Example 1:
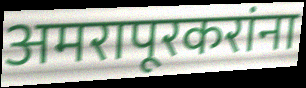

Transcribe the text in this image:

अमरापूरकरांना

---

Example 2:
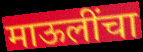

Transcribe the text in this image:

माऊलींचा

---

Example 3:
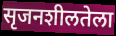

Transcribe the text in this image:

सृजनशीलतेला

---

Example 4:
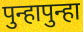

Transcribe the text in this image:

पुन्हापुन्हा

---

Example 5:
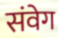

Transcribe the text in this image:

संवेग